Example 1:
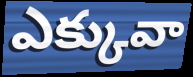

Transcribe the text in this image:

ఎక్కువా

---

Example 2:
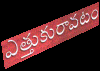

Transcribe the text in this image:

ఎత్తుకురావటం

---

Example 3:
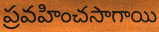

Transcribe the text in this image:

ప్రవహించసాగాయి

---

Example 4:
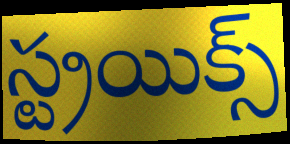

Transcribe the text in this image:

స్ట్రయిక్స్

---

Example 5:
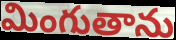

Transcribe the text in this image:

మింగుతాను